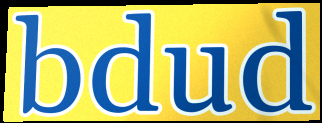
bdud